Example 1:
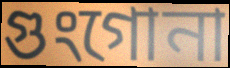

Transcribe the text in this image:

গুংগোনা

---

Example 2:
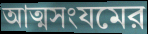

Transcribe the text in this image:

আত্মসংযমের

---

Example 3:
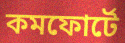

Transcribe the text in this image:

কমফোর্টে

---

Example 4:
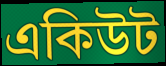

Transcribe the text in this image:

একিউট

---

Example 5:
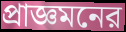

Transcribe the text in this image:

প্রাজ্ঞমনের